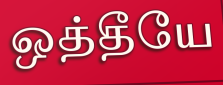
ஒத்தீயே